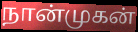
நான்முகன்